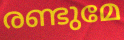
രണ്ടുമേ